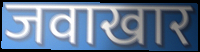
जवाखार